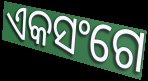
ଏକସଂଗେ